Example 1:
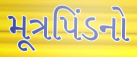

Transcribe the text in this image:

મૂત્રપિંડનો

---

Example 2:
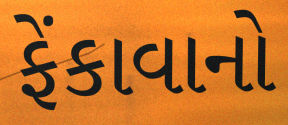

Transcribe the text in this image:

ફેંકાવાનો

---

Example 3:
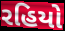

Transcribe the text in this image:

રહિયો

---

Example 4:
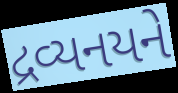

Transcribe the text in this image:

દ્રવ્યનયને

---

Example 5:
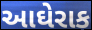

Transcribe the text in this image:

આઘેરાક